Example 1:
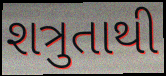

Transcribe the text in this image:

શત્રુતાથી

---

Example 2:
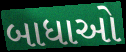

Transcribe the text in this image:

બાધાઓ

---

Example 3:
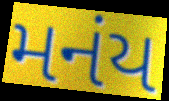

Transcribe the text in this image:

મનંય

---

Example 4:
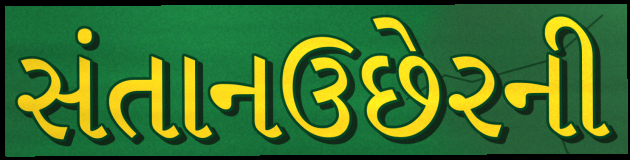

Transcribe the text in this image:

સંતાનઉછેરની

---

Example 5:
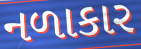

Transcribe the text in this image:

નળાકાર